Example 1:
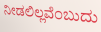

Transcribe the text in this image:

ನೀಡಲಿಲ್ಲವೆಂಬುದು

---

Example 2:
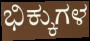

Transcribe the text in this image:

ಭಿಕ್ಕುಗಳ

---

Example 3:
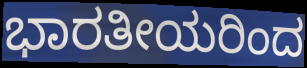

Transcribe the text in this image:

ಭಾರತೀಯರಿಂದ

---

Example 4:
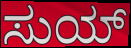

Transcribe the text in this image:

ಸುಯ್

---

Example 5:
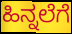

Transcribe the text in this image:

ಹಿನ್ನಲೆಗೆ